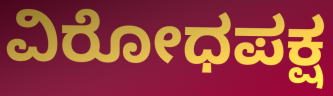
ವಿರೋಧಪಕ್ಷ